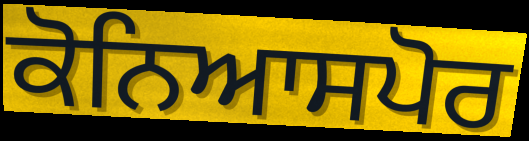
ਕੋਨਿਆਸਪੋਰ